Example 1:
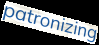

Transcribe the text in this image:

patronizing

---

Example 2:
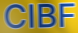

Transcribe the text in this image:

CIBF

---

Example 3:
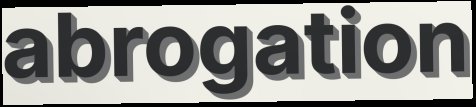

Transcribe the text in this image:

abrogation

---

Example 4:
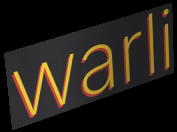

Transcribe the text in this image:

warli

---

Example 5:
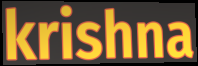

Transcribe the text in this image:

krishna